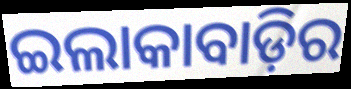
ଇଲାକାବାଡ଼ିର